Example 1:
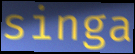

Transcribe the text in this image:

singa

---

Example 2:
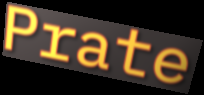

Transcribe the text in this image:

Prate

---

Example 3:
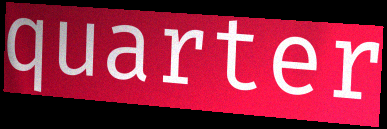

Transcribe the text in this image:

quarter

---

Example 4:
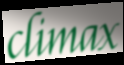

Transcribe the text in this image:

climax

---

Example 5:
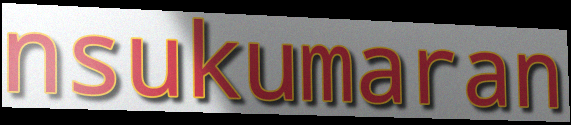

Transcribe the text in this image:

nsukumaran